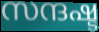
സന്ദഷ്ട